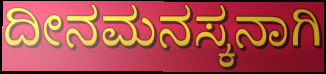
ದೀನಮನಸ್ಕನಾಗಿ